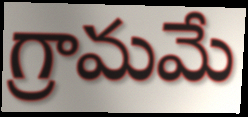
గ్రామమే